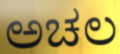
ಅಚಲ